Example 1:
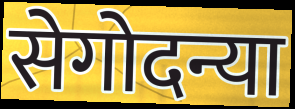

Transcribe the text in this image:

सेगोदन्या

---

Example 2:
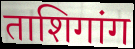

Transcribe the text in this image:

ताशिगांग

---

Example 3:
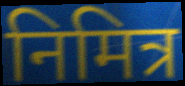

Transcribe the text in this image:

निमित्र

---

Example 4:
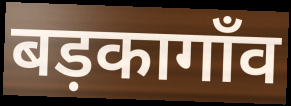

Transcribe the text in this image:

बड़कागाँव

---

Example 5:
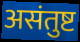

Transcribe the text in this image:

असंतुष्ट